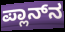
ಪ್ಲಾನ್‌ನ